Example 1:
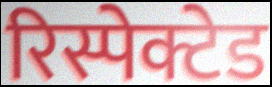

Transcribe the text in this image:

रिस्पेक्टेड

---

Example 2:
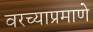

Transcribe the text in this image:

वरच्याप्रमाणे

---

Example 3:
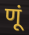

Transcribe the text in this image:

णूं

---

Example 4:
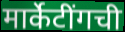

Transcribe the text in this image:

मार्केटींगची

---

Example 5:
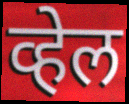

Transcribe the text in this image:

व्हेल